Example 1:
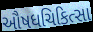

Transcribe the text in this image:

ઔષધચિકિત્સા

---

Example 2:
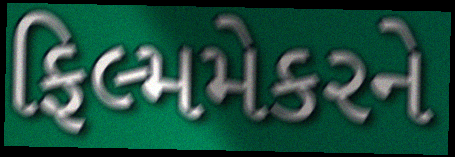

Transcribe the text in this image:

ફિલ્મમેકરને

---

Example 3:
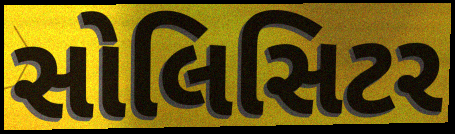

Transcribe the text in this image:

સોલિસિટર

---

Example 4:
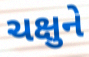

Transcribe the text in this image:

ચક્ષુને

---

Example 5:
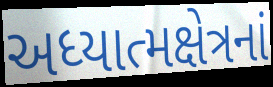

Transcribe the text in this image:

અધ્યાત્મક્ષેત્રનાં